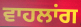
ਵਾਹਲਾਂਗ